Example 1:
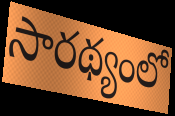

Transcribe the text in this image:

సారథ్యంలో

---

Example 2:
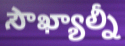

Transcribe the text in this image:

సౌఖ్యాల్నీ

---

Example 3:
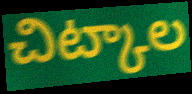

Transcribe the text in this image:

చిట్కాల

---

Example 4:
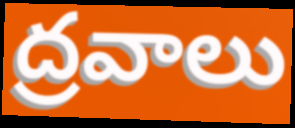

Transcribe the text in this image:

ద్రవాలు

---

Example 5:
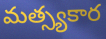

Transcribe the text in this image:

మత్స్యకార